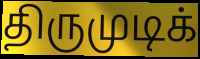
திருமுடிக்